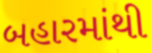
બહારમાંથી